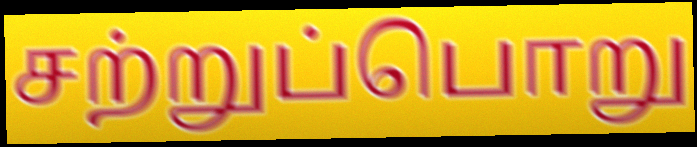
சற்றுப்பொறு